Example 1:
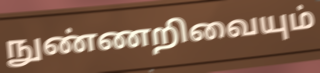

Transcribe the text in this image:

நுண்ணறிவையும்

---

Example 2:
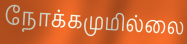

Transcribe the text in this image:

நோக்கமுமில்லை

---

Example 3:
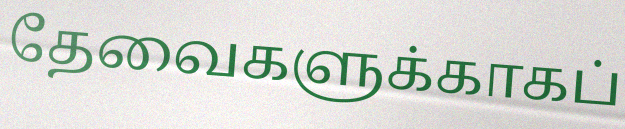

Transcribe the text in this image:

தேவைகளுக்காகப்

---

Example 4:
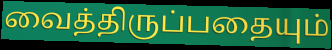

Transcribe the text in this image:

வைத்திருப்பதையும்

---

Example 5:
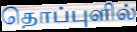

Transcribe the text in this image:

தொப்புளில்